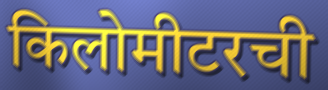
किलोमीटरची